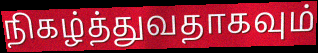
நிகழ்த்துவதாகவும்